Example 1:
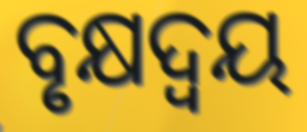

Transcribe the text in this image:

ବୃକ୍ଷଦ୍ୱୟ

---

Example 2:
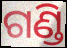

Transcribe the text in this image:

ଗଣ୍ଡି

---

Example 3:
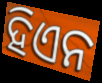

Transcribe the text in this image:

ହିଏନ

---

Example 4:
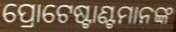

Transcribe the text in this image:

ପ୍ରୋଟେଷ୍ଟାଣ୍ଟମାନଙ୍କ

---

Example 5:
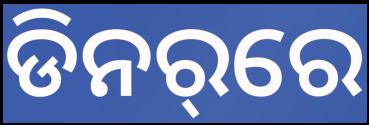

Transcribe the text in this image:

ଡିନର୍‌ରେ